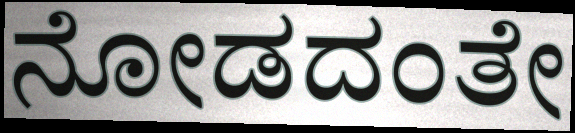
ನೋಡದಂತೇ